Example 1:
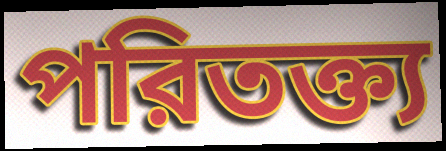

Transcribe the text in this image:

পরিতক্ত্য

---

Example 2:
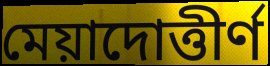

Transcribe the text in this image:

মেয়াদোত্তীর্ণ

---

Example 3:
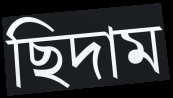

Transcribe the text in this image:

ছিদাম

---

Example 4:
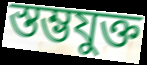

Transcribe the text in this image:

স্তম্ভযুক্ত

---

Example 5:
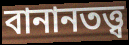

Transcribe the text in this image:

বানানতত্ত্ব